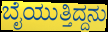
ಬೈಯುತ್ತಿದ್ದನು